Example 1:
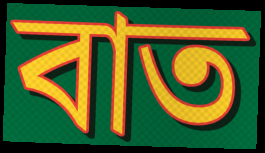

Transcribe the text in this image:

বাত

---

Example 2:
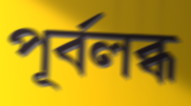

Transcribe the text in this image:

পূৰ্বলব্ধ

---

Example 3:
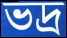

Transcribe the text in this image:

ভদ্ৰ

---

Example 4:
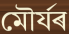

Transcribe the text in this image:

মৌৰ্যৰ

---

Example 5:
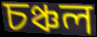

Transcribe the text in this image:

চঞ্চল